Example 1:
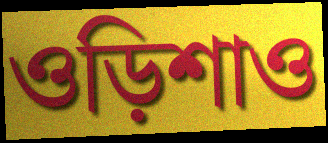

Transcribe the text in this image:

ওড়িশাও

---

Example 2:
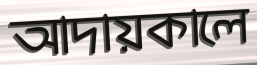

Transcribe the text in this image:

আদায়কালে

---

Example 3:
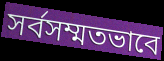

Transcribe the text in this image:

সর্বসম্মতভাবে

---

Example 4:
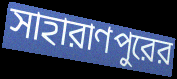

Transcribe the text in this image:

সাহারাণপুরের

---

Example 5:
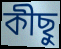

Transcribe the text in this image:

কীছু